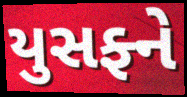
યુસફ્ને